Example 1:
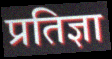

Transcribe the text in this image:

प्रतिज्ञा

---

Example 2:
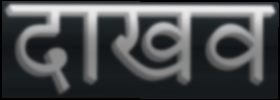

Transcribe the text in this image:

दाखव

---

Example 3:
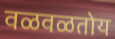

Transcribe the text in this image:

वळवळतोय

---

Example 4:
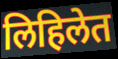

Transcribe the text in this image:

लिहिलेत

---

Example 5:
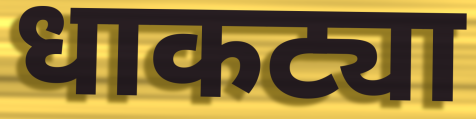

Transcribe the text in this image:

धाकट्या